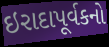
ઇરાદાપૂર્વકનો